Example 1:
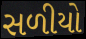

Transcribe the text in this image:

સળીયો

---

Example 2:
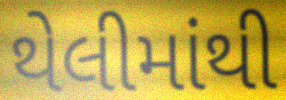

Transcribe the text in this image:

થેલીમાંથી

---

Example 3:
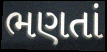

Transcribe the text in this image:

ભણતાં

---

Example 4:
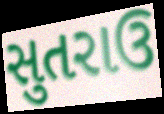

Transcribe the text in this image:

સુતરાઉ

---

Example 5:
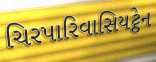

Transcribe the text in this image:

ચિરપારિવાસિયટ્ઠેન